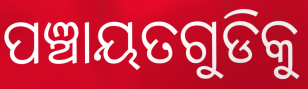
ପଞ୍ଚାୟତଗୁଡିକୁ